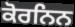
ਕੋਰਨਿਨ